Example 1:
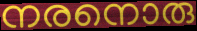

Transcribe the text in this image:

നരനൊരു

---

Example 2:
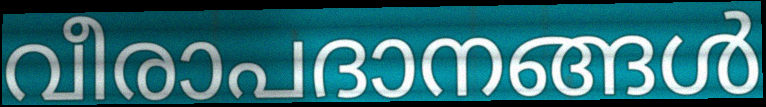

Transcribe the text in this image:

വീരാപദാനങ്ങൾ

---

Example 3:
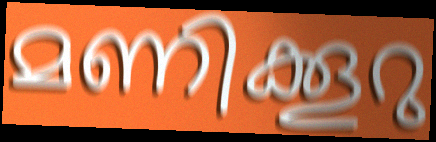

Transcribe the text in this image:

മണിക്കൂറു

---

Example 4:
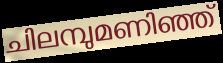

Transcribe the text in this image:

ചിലമ്പുമണിഞ്ഞ്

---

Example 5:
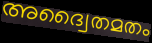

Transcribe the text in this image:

അദ്വൈതമതം